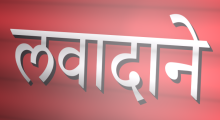
लवादाने